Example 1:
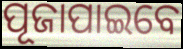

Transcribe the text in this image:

ପୂଜାପାଇବେ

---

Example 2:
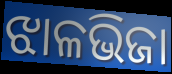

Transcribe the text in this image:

ଝାଳଭିଜା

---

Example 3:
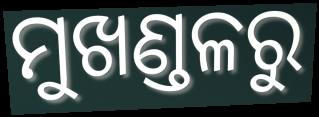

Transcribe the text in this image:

ମୁଖଣ୍ଡଳରୁ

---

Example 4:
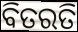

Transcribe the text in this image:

ବିତରତି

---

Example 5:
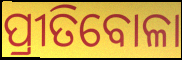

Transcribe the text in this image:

ପ୍ରୀତିବୋଳା